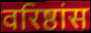
वरिष्ठांस